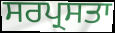
ਸਰਪ੍ਰਸਤਾ